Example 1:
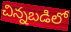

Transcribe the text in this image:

చిన్నబడిలో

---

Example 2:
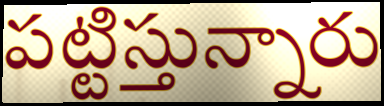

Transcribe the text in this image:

పట్టిస్తున్నారు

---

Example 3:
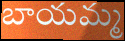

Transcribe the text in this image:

బాయమ్మ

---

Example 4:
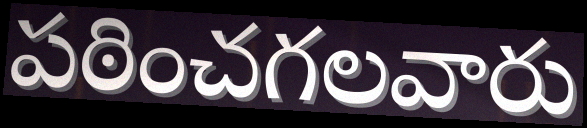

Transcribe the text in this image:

పఠించగలవారు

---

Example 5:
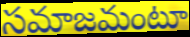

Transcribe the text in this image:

సమాజమంటూ